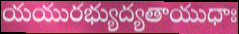
యయురభ్యుద్యతాయుధాః